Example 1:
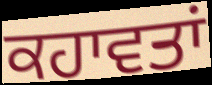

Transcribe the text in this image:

ਕਹਾਵਤਾਂ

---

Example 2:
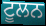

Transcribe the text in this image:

ਟੂਲਨ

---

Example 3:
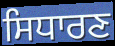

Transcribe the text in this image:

ਸਿਧਾਰਣ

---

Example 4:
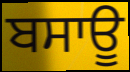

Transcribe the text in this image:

ਬਸਾਊ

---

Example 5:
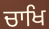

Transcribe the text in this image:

ਚਾਖਿ